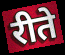
रीते